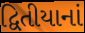
દ્વિતીયાનાં